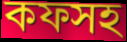
কফসহ